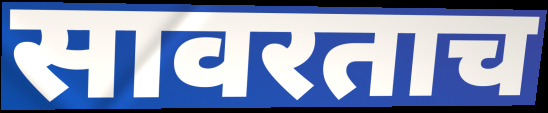
सावरताच